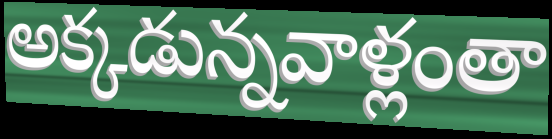
అక్కడున్నవాళ్లంతా